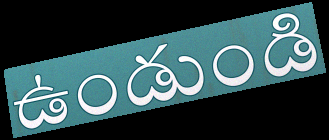
ఉండుండి